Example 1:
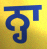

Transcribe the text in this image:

ਨ੍ਹਾ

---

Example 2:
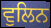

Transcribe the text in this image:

ਵੁਲਿਨ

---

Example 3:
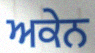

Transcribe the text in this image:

ਅਕੇਨ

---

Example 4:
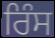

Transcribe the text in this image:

ਰਿੰਸ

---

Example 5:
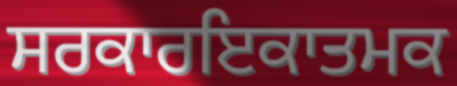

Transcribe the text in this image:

ਸਰਕਾਰਇਕਾਤਮਕ